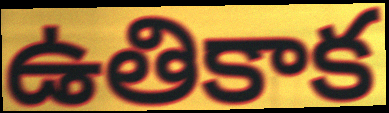
ఉతికాక